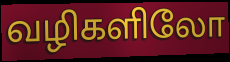
வழிகளிலோ